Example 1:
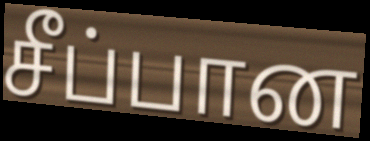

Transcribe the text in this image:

சீப்பான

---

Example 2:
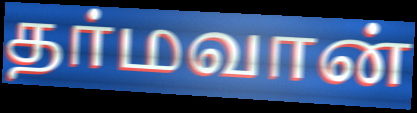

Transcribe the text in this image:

தர்மவான்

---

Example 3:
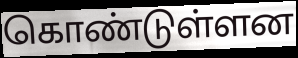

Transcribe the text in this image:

கொண்டுள்ளன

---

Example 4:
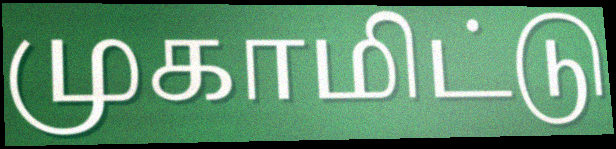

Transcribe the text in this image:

முகாமிட்டு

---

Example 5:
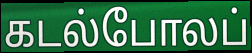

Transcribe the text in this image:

கடல்போலப்